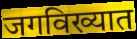
जगविख्यात